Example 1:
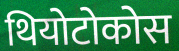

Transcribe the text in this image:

थियोटोकोस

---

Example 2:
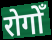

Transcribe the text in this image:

रोगोँ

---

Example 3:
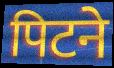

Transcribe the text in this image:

पिटने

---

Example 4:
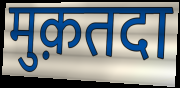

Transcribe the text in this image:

मुक़तदा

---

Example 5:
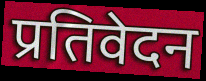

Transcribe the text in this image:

प्रतिवेदन